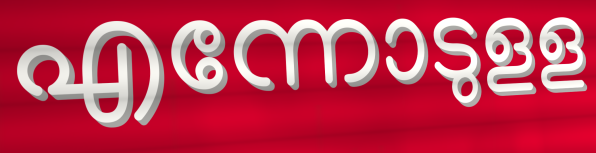
എന്നോടുളള